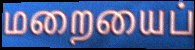
மறையைப்